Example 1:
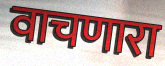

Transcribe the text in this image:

वाचणारा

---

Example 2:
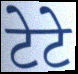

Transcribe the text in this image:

टेटे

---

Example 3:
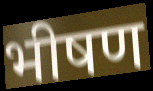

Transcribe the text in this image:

भीषण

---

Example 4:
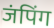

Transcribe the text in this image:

जंपिंग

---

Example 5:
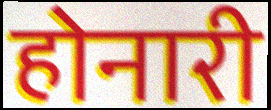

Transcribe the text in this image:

होनारी